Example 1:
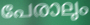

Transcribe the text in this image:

പേരാലും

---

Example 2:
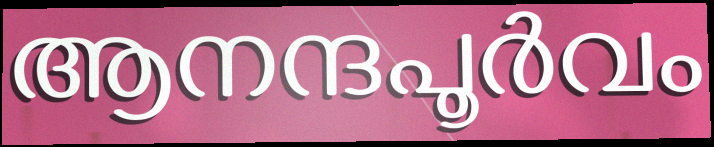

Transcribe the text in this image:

ആനന്ദപൂർവം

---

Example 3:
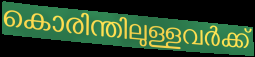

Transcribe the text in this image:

കൊരിന്തിലുള്ളവർക്ക്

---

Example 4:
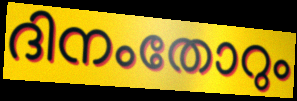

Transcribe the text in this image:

ദിനംതോറും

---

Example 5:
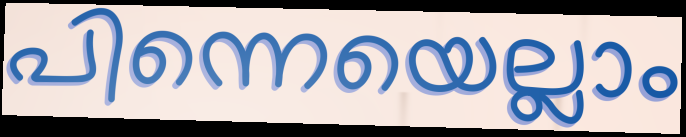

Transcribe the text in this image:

പിന്നെയെല്ലാം